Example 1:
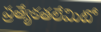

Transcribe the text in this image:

ప్రత్యేకతలేమిటో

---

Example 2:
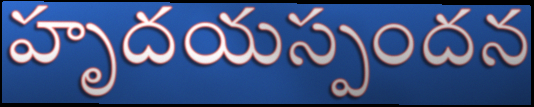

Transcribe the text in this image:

హృదయస్పందన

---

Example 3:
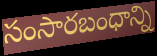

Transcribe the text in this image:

సంసారబంధాన్ని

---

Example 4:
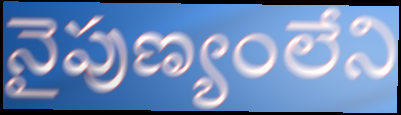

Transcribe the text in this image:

నైపుణ్యంలేని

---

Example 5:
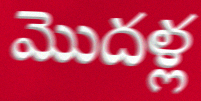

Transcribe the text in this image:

మొదళ్ల